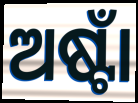
ଅଷ୍ଟାଁ